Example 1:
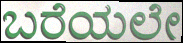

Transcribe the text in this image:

ಬರೆಯಲೇ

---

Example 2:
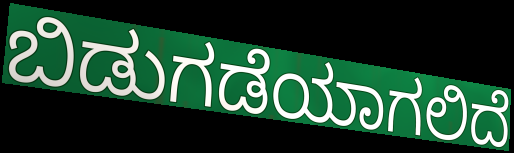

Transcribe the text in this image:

ಬಿಡುಗಡೆಯಾಗಲಿದೆ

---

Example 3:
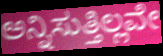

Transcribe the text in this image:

ಅನ್ನಿಸುತ್ತಿಲ್ಲವೇ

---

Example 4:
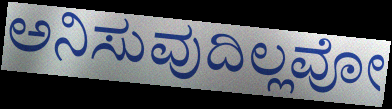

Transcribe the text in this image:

ಅನಿಸುವುದಿಲ್ಲವೋ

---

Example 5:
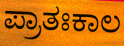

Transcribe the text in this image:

ಪ್ರಾತಃಕಾಲ